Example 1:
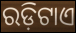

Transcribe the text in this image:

ରଡ଼ିଟାଏ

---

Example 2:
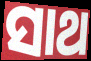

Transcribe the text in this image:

ସାଥ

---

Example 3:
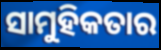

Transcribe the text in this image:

ସାମୁହିକତାର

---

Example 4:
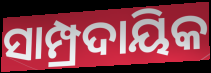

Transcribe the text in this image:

ସାମ୍ପ୍ରଦାୟିକ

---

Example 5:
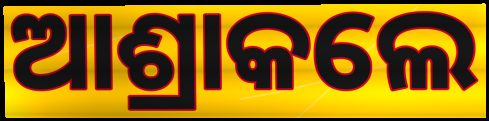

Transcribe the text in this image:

ଆଶ୍ରାକଲେ